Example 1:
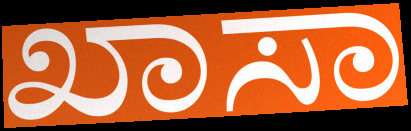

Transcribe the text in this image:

ಖಾಸಾ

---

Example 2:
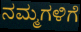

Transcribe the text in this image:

ನಮ್ಮಗಳಿಗೆ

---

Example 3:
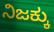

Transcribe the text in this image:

ನಿಜಕ್ಕು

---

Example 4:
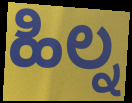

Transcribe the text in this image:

ಹಿಲ್ನ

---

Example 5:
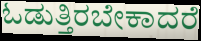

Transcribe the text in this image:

ಓಡುತ್ತಿರಬೇಕಾದರೆ